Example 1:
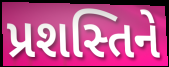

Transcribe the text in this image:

પ્રશસ્તિને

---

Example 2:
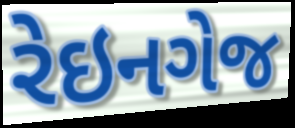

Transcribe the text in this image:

રેઇનગેજ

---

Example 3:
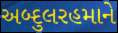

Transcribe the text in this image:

અબ્દુલરહમાને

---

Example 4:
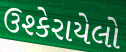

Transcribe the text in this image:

ઉશ્કેરાયેલો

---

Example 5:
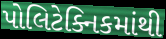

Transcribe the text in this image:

પોલિટેક્નિકમાંથી